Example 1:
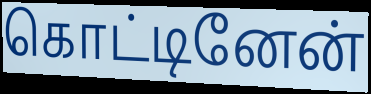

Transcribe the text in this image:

கொட்டினேன்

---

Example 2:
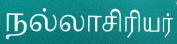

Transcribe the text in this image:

நல்லாசிரியர்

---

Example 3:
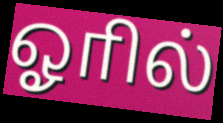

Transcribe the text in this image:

ஓரில்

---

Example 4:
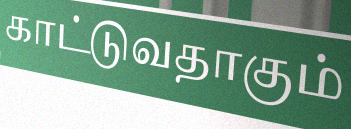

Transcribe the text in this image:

காட்டுவதாகும்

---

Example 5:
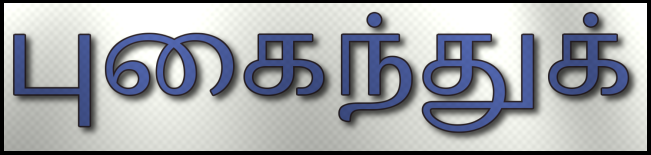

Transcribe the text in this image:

புகைந்துக்